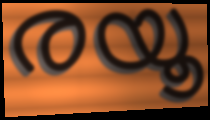
രയൂ